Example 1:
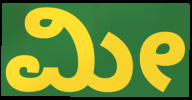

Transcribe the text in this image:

ಮೀ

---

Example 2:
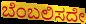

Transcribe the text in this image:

ಬೆಂಬಲಿಸದೇ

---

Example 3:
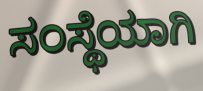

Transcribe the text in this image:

ಸಂಸ್ಥೆಯಾಗಿ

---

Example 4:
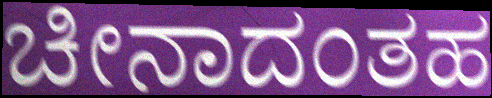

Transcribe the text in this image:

ಚೀನಾದಂತಹ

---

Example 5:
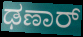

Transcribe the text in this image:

ಢಣಾರ್